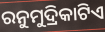
ରନୁମୁଦ୍ରିକାଟିଏ